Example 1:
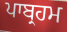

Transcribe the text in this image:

ਪਾਬ੍ਰਹਮ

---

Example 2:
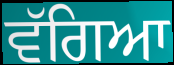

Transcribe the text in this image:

ਵੱਗਿਆ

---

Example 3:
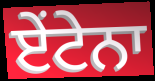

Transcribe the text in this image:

ਏਂਟੇਨਾ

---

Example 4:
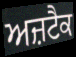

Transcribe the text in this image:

ਅਜ਼ਟੈਕ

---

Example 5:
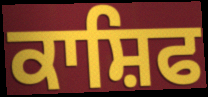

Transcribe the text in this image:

ਕਾਸ਼ਿਫ